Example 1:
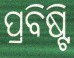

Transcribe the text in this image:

ପ୍ରବିଷ୍ଟି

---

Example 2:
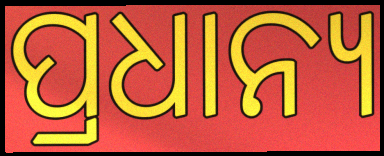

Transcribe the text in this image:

ପ୍ରଧାନ୍ୟ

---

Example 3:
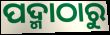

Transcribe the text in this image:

ପଦ୍ମାଠାରୁ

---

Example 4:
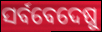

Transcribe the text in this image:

ସର୍ବବେଦେଷୁ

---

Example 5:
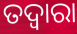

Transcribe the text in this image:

ତଦ୍ବାରା